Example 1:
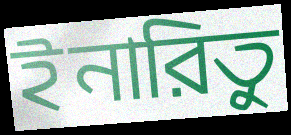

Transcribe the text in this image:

ইনারিতু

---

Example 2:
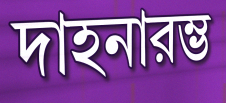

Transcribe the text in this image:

দাহনারম্ভ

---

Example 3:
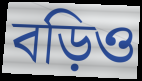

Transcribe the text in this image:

বড়িও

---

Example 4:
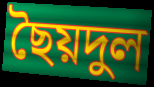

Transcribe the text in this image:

ছৈয়দুল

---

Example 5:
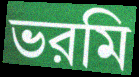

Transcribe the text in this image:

ভরমি